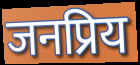
जनप्रिय